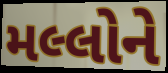
મલ્લોને